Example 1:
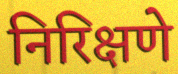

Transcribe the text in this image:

निरिक्षणे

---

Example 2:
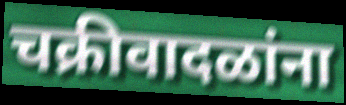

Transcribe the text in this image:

चक्रीवादळांना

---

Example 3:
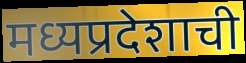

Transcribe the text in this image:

मध्यप्रदेशाची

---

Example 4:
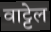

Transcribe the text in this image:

वाट्टेल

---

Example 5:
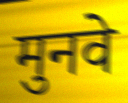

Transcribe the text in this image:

मुनवे